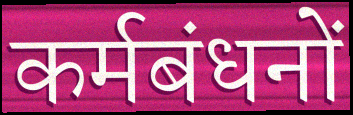
कर्मबंधनों